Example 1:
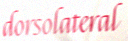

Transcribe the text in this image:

dorsolateral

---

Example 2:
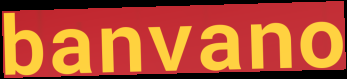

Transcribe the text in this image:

banvano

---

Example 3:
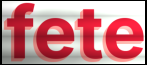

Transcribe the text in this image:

fete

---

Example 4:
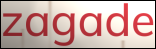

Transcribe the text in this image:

zagade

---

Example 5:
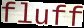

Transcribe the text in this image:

fluff